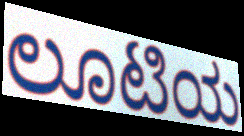
ಲೂಟಿಯ